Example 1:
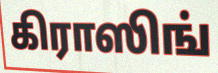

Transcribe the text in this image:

கிராஸிங்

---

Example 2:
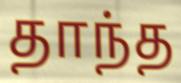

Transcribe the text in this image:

தாந்த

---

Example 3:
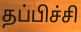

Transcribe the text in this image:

தப்பிச்சி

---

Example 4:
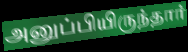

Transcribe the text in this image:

அனுப்பியிருந்தார்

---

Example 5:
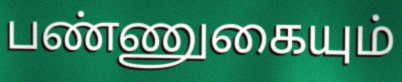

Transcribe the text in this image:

பண்ணுகையும்